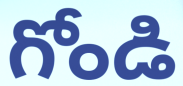
గోండి